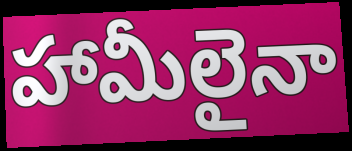
హామీలైనా